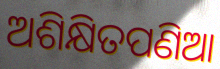
ଅଶିକ୍ଷିତପଣିଆ